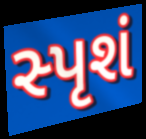
સ્પૃશં